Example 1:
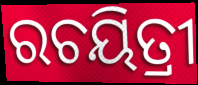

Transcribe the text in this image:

ରଚୟିତ୍ରୀ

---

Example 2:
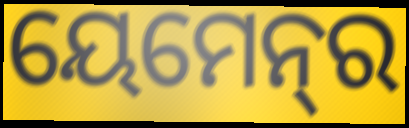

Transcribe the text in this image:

ୟେମେନ୍‌ର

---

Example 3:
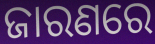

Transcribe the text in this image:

ଜାରଣରେ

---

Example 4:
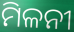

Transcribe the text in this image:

ମିଳନୀ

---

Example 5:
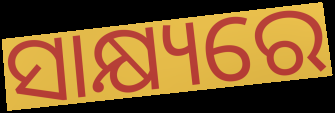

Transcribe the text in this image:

ସାକ୍ଷ୍ୟରେ